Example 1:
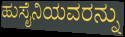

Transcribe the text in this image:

ಹುಸೈನಿಯವರನ್ನು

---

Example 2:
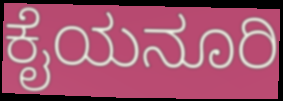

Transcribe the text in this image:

ಕೈಯನೂರಿ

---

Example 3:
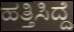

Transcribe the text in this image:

ಹತ್ತಿಸಿದ್ದೆ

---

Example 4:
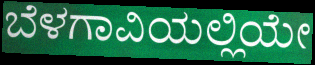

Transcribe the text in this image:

ಬೆಳಗಾವಿಯಲ್ಲಿಯೇ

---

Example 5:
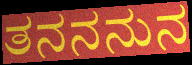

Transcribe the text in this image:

ತನನನುನ